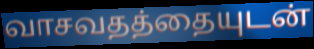
வாசவதத்தையுடன்